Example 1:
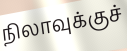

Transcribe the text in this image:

நிலாவுக்குச்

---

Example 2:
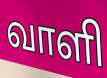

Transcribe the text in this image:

வாளி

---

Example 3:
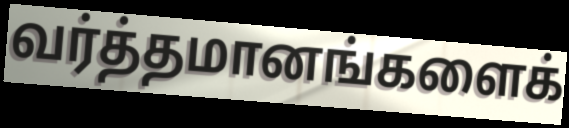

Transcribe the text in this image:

வர்த்தமானங்களைக்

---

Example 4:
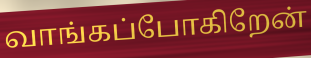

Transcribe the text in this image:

வாங்கப்போகிறேன்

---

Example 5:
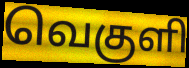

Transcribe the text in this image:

வெகுளி